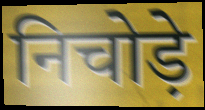
निचोड़े